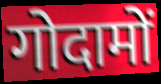
गोदामों